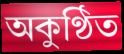
অকুণ্ঠিত